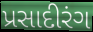
પ્રસાદીરંગ